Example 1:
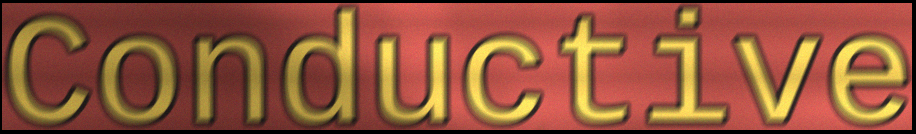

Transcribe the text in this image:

Conductive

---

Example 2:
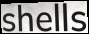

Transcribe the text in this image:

shells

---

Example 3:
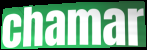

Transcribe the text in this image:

chamar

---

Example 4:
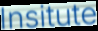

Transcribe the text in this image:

Insitute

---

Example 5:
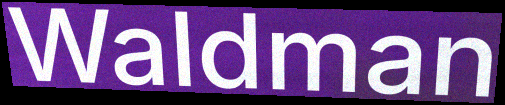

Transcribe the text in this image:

Waldman